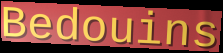
Bedouins